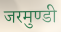
जरमुण्डी